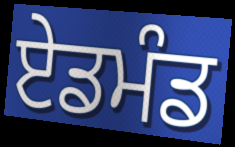
ਏਡਮੰਡ